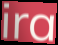
ira